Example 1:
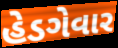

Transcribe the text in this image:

હેડગેવાર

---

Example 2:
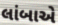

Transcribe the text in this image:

લાંબાએ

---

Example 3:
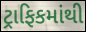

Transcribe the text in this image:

ટ્રાફિકમાંથી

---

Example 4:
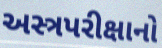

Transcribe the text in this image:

અસ્ત્રપરીક્ષાનો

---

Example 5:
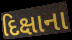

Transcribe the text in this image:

દિક્ષાના